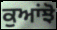
ਕੁਆਂਝੋ